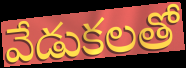
వేడుకలతో